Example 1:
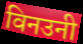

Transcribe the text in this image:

विनउनी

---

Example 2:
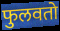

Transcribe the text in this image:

फुलवतो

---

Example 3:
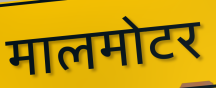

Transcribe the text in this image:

मालमोटर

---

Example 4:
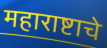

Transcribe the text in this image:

महाराष्टाचे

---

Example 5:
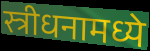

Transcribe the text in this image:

स्त्रीधनामध्ये